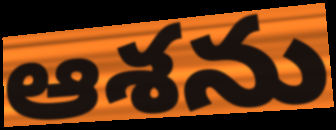
ఆశను